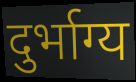
दुर्भाग्य